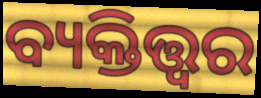
ବ୍ୟକ୍ତିତ୍ତ୍ଵର